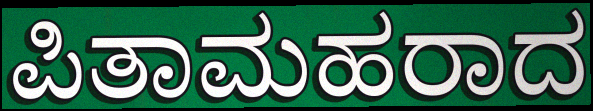
ಪಿತಾಮಹರಾದ